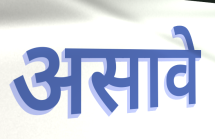
असावे